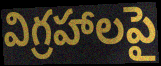
విగ్రహాలపై